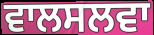
ਵਾਲਸਲਵਾ